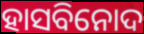
ହାସବିନୋଦ